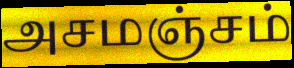
அசமஞ்சம்